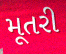
મૂતરી